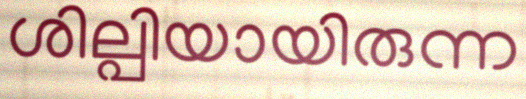
ശില്പിയായിരുന്ന